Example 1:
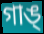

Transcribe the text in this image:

গাঙ্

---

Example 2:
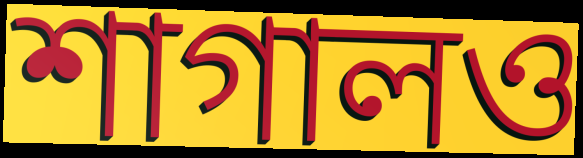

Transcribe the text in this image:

শাগালও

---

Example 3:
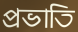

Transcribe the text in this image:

প্রভাতি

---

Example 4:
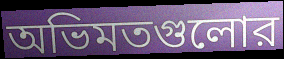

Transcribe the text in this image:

অভিমতগুলোর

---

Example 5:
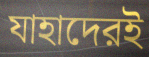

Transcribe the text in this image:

যাহাদেরই